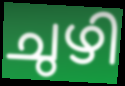
ചുഴി